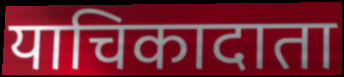
याचिकादाता